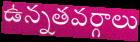
ఉన్నతవర్గాలు